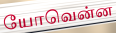
யோவென்ன